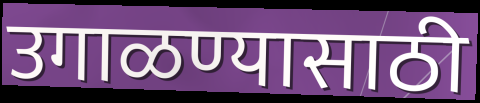
उगाळण्यासाठी